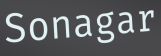
Sonagar